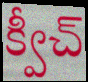
క్వీచ్